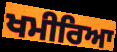
ਖਮੀਰਿਆ